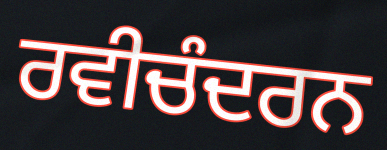
ਰਵੀਚੰਦਰਨ